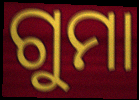
ଗୁମା